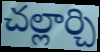
చల్లార్చి